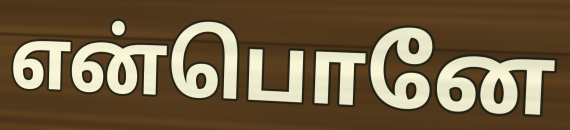
என்பொனே